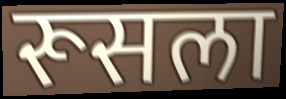
रूसला